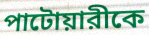
পাটোয়ারীকে